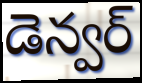
డెన్వర్